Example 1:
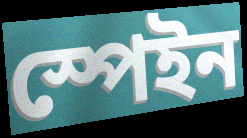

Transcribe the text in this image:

স্পেইন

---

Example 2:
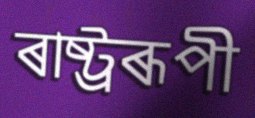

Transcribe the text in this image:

ৰাষ্ট্ৰৰূপী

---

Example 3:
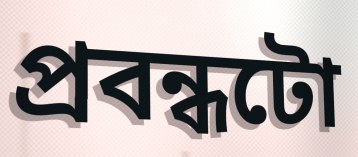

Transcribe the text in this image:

প্ৰবন্ধটো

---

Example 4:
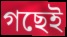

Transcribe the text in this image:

গছেই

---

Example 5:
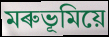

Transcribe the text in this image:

মৰুভূমিয়ে